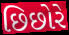
છિછોરે